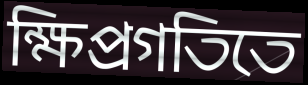
ক্ষিপ্রগতিতে